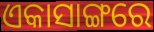
ଏକାସାଙ୍ଗରେ